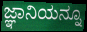
ಜ್ಞಾನಿಯನ್ನೂ